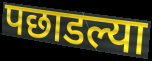
पछाडल्या